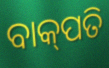
ବାକ୍‌ପତି